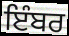
ਇੰਬਰ